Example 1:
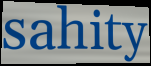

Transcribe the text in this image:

sahity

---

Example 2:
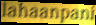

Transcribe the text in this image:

lahaanpani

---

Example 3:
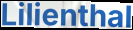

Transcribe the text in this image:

Lilienthal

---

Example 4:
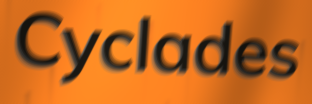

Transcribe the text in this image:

Cyclades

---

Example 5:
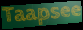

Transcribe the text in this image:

Taapsee